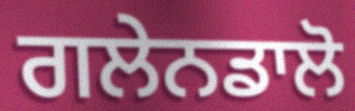
ਗਲੇਨਡਾਲੋ